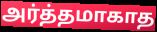
அர்த்தமாகாத